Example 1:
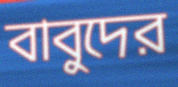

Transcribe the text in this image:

বাবুদের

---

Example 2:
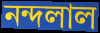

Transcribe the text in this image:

নন্দলাল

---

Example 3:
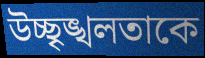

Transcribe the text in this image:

উচ্ছৃঙ্খলতাকে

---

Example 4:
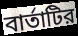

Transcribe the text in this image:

বার্তাটির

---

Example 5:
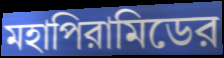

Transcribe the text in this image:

মহাপিরামিডের